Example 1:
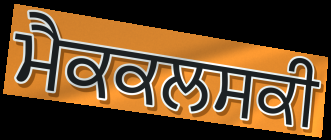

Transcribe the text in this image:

ਮੈਕਕਲਸਕੀ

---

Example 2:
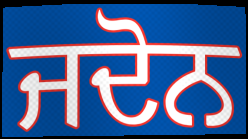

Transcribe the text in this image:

ਜਦੋਨ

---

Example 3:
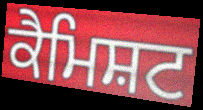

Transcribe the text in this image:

ਕੈਮਿਸ਼ਟ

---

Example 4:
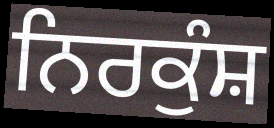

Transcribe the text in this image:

ਨਿਰਕੁੰਸ਼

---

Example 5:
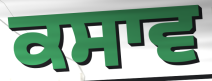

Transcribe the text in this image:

ਕਸਾਵ